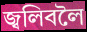
জ্বলিবলৈ